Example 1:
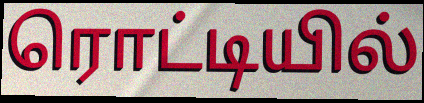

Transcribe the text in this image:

ரொட்டியில்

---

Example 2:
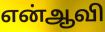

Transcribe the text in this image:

என்ஆவி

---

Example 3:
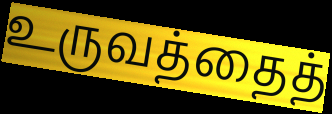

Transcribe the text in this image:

உருவத்தைத்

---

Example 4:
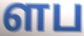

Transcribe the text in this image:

ளப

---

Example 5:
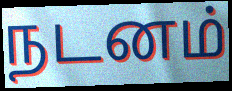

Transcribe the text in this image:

நடனம்